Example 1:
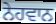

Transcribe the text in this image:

ਨੇਹਵਾਨ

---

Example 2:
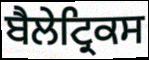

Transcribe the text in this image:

ਬੈਲੇਟ੍ਰਿਕਸ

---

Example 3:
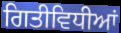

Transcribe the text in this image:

ਗਿਤੀਵਿਧੀਆਂ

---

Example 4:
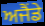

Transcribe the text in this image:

ਅਜੈਂਡੇ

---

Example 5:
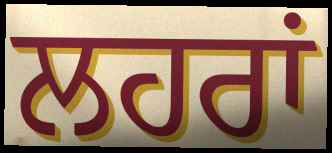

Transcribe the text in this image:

ਲਹਰਾਂ